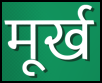
मूर्ख